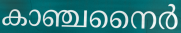
കാഞ്ചനൈർ